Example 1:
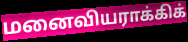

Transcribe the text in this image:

மனைவியராக்கிக்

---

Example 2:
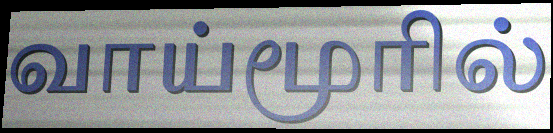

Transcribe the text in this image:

வாய்மூரில்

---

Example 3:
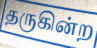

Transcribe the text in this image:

தருகின்ற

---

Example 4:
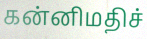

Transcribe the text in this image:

கன்னிமதிச்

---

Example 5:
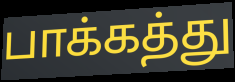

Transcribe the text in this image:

பாக்கத்து